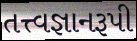
તત્ત્વજ્ઞાનરૂપી